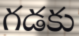
గడకు